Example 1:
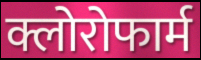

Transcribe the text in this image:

क्लोरोफार्म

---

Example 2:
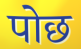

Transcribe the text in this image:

पोछ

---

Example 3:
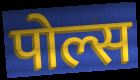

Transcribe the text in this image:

पोल्‍स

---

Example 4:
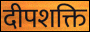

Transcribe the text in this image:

दीपशक्ति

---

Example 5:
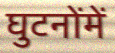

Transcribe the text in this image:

घुटनोंमें